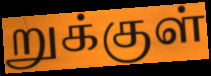
றுக்குள்